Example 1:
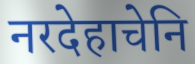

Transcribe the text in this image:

नरदेहाचेनि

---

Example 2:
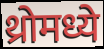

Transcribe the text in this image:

थ्रोमध्ये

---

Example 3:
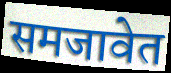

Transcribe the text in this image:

समजावेत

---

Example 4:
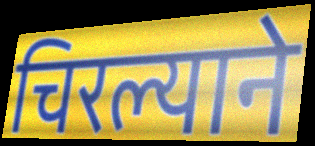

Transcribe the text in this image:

चिरल्याने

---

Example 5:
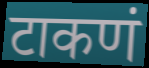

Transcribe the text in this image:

टाकणं